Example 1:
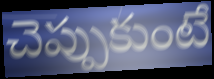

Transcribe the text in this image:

చెప్పుకుంటే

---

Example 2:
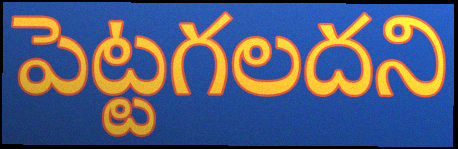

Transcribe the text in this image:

పెట్టగలదని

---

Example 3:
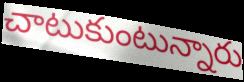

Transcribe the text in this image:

చాటుకుంటున్నారు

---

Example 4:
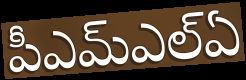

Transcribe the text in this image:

పీఎమ్ఎల్ఏ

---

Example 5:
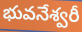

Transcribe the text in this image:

భువనేశ్వరీ